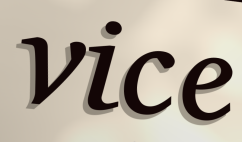
vice